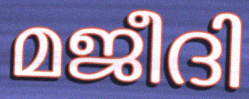
മജീദി